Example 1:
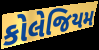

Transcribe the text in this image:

કોલેજિયમ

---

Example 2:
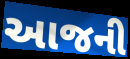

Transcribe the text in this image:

આજની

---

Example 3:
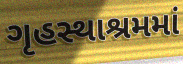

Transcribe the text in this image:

ગૃહસ્થાશ્રમમાં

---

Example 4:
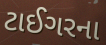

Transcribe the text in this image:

ટાઈગરના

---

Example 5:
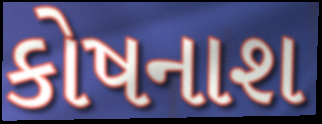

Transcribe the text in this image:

કોષનાશ